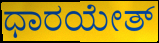
ಧಾರಯೇತ್